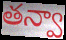
తన్వా